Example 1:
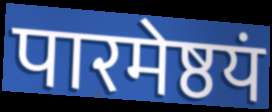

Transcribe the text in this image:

पारमेष्ठयं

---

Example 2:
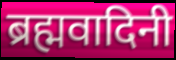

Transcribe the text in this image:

ब्रह्मवादिनी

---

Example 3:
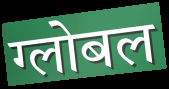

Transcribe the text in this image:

ग्लोबल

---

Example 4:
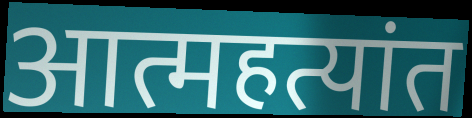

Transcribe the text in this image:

आत्महत्यांत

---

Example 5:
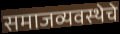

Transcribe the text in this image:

समाजव्यवस्थेचे